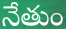
నేతుం